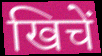
खिचें